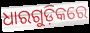
ଧାରଗୁଡ଼ିକରେ